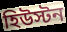
হিউস্টন